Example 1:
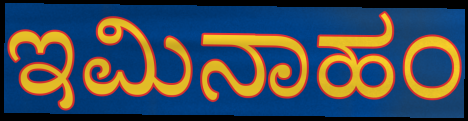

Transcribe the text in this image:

ಇಮಿನಾಹಂ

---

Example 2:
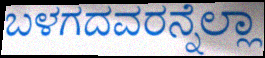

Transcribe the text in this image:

ಬಳಗದವರನ್ನೆಲ್ಲಾ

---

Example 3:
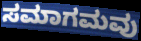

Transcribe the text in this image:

ಸಮಾಗಮವು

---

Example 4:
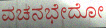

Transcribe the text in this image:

ವಚನಭೇದೋ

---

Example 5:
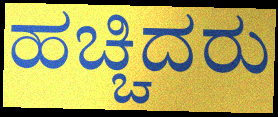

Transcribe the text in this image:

ಹಚ್ಚಿದರು